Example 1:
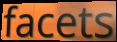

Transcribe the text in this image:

facets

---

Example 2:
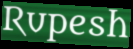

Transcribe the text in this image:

Rupesh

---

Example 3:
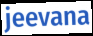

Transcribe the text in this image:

jeevana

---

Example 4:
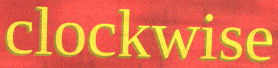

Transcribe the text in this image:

clockwise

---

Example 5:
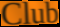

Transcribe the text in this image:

Club